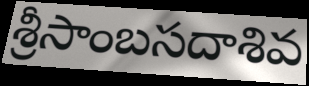
శ్రీసాంబసదాశివ